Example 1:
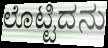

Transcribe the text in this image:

ಲೊಟ್ಟಿದನು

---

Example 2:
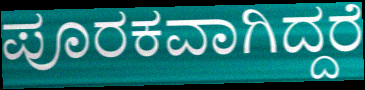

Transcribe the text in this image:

ಪೂರಕವಾಗಿದ್ದರೆ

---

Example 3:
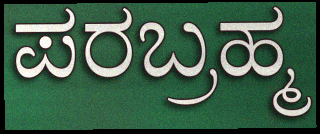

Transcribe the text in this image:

ಪರಬ್ರಹ್ಮ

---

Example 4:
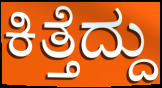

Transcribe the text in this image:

ಕಿತ್ತೆದ್ದು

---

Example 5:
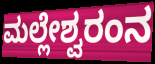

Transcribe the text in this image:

ಮಲ್ಲೇಶ್ವರಂನ